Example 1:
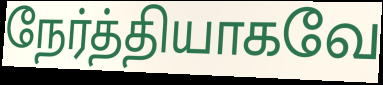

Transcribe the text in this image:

நேர்த்தியாகவே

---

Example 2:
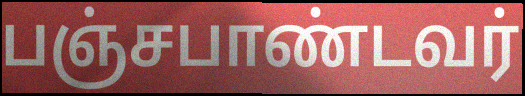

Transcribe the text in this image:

பஞ்சபாண்டவர்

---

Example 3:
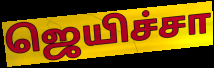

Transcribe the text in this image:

ஜெயிச்சா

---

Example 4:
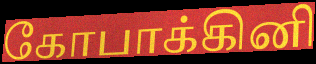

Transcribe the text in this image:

கோபாக்கினி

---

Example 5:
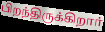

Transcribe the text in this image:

பிறந்திருக்கிறார்